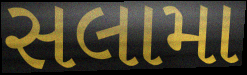
સલામા